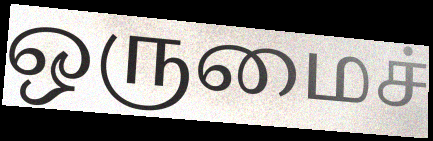
ஒருமைச்